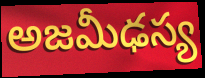
అజమీఢస్య